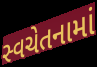
સ્વચેતનામાં